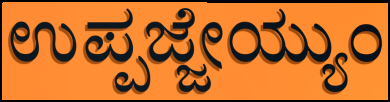
ಉಪ್ಪಜ್ಜೇಯ್ಯುಂ